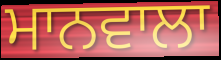
ਮਾਨਵਾਲਾ